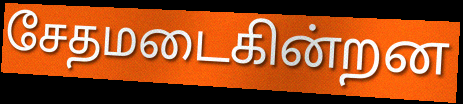
சேதமடைகின்றன